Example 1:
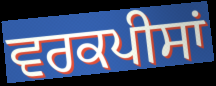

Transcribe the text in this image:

ਵਰਕਪੀਸਾਂ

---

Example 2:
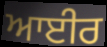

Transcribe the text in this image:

ਆਈਰ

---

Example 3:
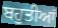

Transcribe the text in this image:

ਬਹੁਤੀਆਂ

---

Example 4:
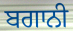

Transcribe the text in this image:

ਬਗਾਨੀ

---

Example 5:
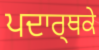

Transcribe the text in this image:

ਪਦਾਰ੍ਥਕੇ